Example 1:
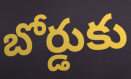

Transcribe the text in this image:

బోర్డుకు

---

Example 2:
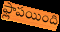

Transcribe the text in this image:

ఫ్లాపయింది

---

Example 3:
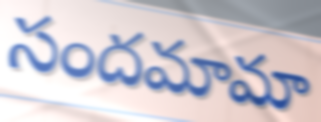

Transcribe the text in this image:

సందమామా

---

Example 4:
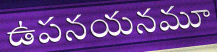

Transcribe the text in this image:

ఉపనయనమూ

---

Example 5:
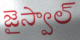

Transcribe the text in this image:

జైస్వాల్